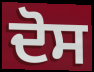
ਦੋਸ